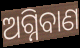
ଅଗ୍ନିବାଣ